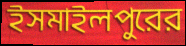
ইসমাইলপুরের